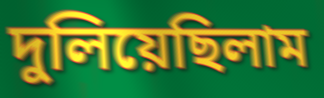
দুলিয়েছিলাম